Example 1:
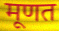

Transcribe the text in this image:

मूणत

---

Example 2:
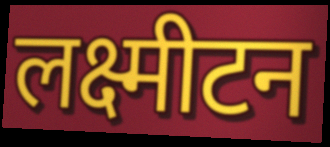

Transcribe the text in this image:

लक्ष्मीटन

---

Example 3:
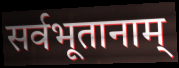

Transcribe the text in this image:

सर्वभूतानाम्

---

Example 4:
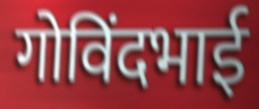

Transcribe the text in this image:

गोविंदभाई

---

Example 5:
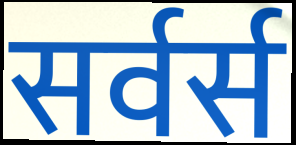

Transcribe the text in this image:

सर्वर्स